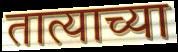
तात्याच्या